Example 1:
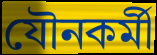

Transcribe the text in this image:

যৌনকৰ্মী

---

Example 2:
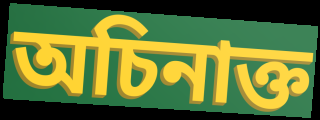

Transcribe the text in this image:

অচিনাক্ত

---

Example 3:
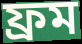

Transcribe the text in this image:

ফ্ৰম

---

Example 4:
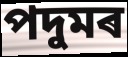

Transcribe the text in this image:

পদুমৰ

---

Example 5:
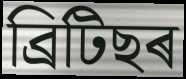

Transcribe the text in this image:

ব্ৰিটিছৰ